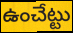
ఉంచేట్టు